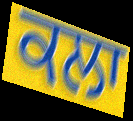
ਕਲਾ